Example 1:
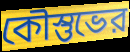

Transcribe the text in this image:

কৌস্তুভের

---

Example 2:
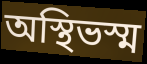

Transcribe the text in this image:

অস্থিভস্ম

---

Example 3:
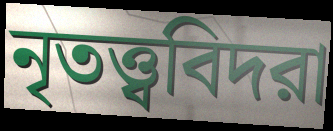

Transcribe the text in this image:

নৃতত্ত্ববিদরা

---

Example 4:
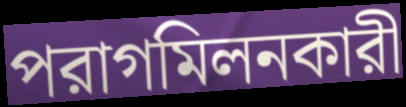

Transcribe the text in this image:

পরাগমিলনকারী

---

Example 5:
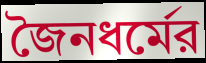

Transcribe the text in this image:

জৈনধর্মের